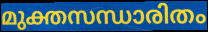
മുക്തസന്ധാരിതം